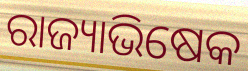
ରାଜ୍ୟାଭିଷେକ